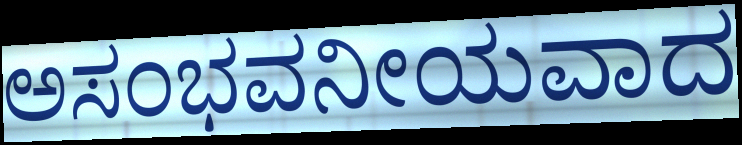
ಅಸಂಭವನೀಯವಾದ